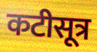
कटीसूत्र